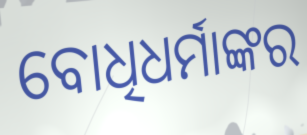
ବୋଧିଧର୍ମାଙ୍କର